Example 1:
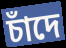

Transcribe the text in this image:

চাঁদে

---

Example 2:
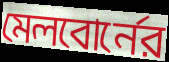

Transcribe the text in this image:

মেলবোর্নের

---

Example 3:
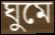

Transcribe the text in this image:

ঘুমে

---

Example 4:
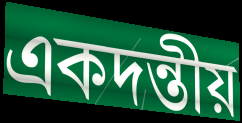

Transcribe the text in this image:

একদন্তীয়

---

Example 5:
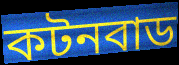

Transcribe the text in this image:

কটনবাড